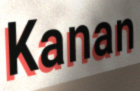
Kanan